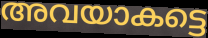
അവയാകട്ടെ